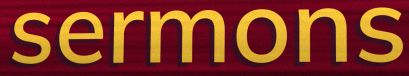
sermons